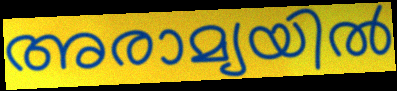
അരാമ്യയിൽ